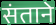
संताने